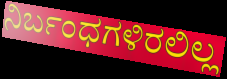
ನಿರ್ಬಂಧಗಳಿರಲಿಲ್ಲ